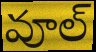
వూల్